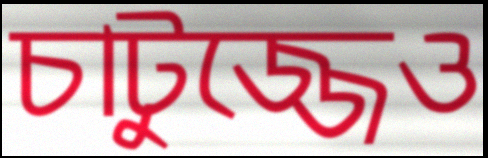
চাটুজ্জেও